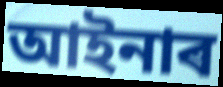
আইনাৰ